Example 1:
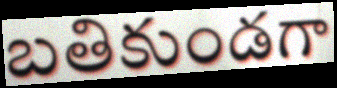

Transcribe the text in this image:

బతికుండగా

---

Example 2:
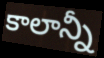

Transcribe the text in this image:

కాలాన్నీ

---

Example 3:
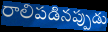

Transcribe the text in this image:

రాలిపడినప్పుడు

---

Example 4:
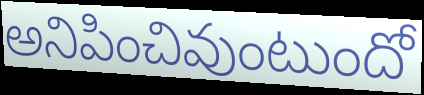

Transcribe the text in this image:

అనిపించివుంటుందో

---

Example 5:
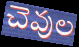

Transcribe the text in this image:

చెవుల